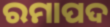
ରମାପଦ